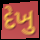
દેખુ